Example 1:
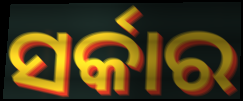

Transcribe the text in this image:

ସର୍କାର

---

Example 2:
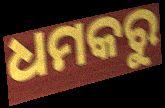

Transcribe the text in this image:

ଧମକରୁ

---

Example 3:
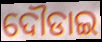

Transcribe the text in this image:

ଦୌଡାଇ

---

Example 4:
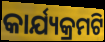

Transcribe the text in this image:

କାର୍ଯ୍ୟକ୍ରମଟି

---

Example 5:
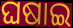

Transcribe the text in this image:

ଘଷାଇ